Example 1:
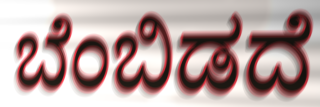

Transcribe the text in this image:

ಬೆಂಬಿಡದೆ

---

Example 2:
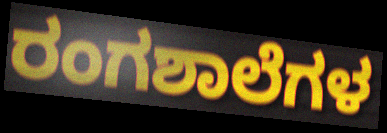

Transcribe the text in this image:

ರಂಗಶಾಲೆಗಳ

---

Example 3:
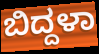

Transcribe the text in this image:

ಬಿದ್ದಳಾ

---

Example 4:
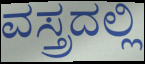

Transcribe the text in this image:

ವಸ್ತ್ರದಲ್ಲಿ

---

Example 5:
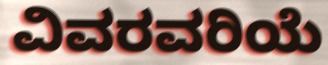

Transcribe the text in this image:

ವಿವರವರಿಯೆ